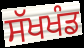
ਸੱਖਖੰਡ